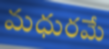
మధురమే